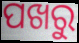
ପଖରୁ